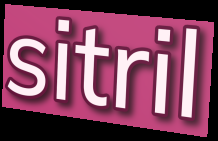
sitril